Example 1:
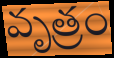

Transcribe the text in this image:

వృత్రం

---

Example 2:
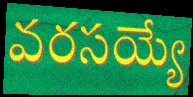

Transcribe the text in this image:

వరసయ్యే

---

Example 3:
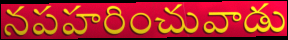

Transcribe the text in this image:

నపహరించువాడు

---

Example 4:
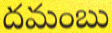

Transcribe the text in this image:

దమంబు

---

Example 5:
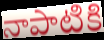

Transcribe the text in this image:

నాపాటికి